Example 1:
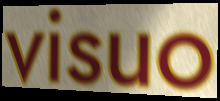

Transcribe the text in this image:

visuo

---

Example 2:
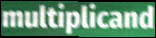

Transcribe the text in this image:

multiplicand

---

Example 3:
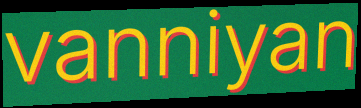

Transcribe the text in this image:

vanniyan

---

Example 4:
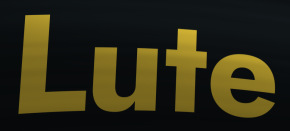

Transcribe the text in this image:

Lute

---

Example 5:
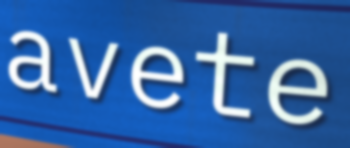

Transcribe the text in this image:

avete